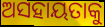
ଅସହାୟତାକୁ